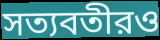
সত্যবতীরও